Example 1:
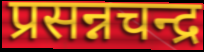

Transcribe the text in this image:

प्रसन्नचन्द्र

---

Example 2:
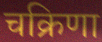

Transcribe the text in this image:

चक्रिणा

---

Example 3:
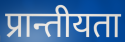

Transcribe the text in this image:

प्रान्तीयता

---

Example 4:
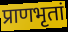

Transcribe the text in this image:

प्राणभृतां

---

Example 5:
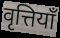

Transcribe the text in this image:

वृत्तियाँ